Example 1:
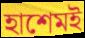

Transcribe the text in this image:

হাশেমই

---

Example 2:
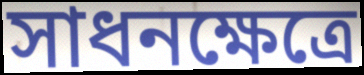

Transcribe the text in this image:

সাধনক্ষেত্রে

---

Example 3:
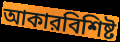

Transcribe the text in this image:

আকারবিশিষ্ট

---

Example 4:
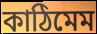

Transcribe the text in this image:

কাঠিমেম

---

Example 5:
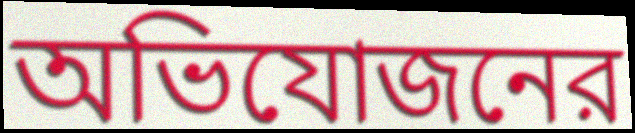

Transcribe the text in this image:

অভিযোজনের